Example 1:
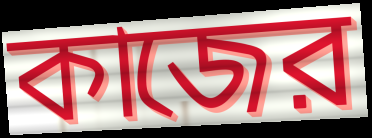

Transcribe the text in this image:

কাজের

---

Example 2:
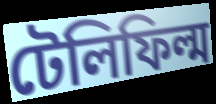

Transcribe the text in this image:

টেলিফিল্ম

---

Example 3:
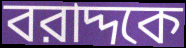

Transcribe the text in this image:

বরাদ্দকে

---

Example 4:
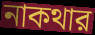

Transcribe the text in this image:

নাকথার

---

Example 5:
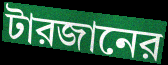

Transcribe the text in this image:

টারজানের